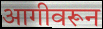
आगीवरून